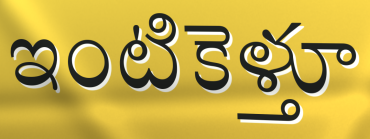
ఇంటికెళ్తూ